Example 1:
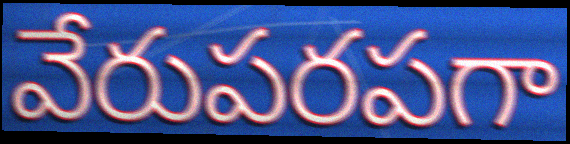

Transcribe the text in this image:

వేరుపరపగా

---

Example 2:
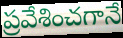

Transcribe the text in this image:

ప్రవేశించగానే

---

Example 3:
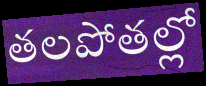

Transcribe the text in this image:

తలపోతల్లో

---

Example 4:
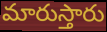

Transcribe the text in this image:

మారుస్తారు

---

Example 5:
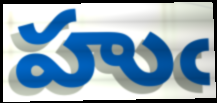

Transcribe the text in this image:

హుఁ